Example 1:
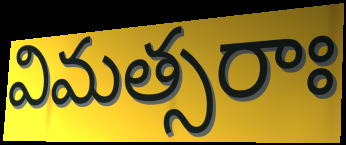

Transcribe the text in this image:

విమత్సరాః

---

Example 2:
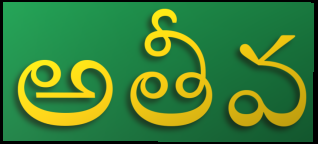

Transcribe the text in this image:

అతీవ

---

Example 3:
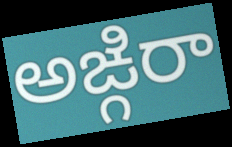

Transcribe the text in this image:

అఙ్గిరా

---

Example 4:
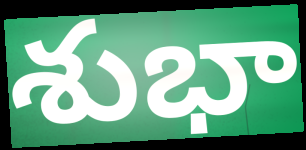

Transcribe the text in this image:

శుభా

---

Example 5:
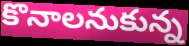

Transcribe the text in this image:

కొనాలనుకున్న